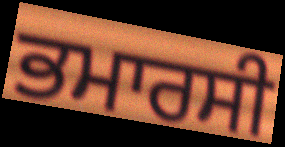
ਭਮਾਰਸੀ